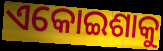
ଏକୋଇଶାକୁ